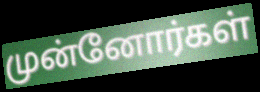
முன்னோர்கள்